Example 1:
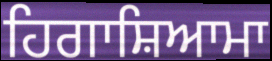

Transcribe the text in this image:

ਹਿਗਾਸ਼ਿਆਮਾ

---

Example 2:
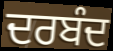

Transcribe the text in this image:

ਦਰਬੰਦ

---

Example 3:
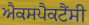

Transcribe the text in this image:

ਐਕਸਪੈਕਟੈਂਸੀ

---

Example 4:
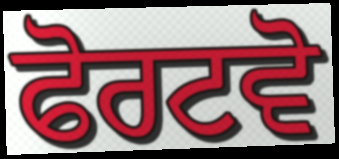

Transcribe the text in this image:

ਫੋਰਟਵੋ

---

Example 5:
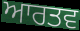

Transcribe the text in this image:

ਆਰਤਵ